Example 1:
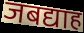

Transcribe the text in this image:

जबद्याह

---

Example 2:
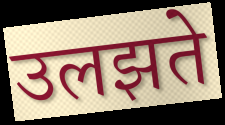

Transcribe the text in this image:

उलझते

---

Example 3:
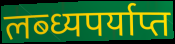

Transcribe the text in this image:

लब्ध्यपर्याप्त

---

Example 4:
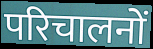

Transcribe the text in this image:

परिचालनों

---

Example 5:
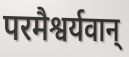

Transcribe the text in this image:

परमैश्वर्यवान्